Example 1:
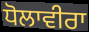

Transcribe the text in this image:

ਧੋਲਾਵੀਰਾ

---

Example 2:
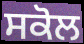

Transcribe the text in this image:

ਸਕੋਲ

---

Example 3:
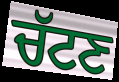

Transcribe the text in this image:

ਚੱਟਣ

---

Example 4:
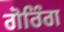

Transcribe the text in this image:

ਗੋਰਿੰਗ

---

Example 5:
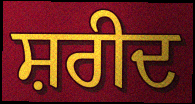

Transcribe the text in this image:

ਸ਼ਰੀਦ